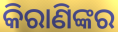
କିରାଣିଙ୍କର